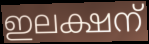
ഇലക്ഷന്